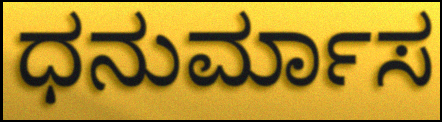
ಧನುರ್ಮಾಸ